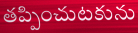
తప్పించుటకును